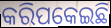
କରିପକେଇଛି